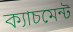
ক্যাচমেন্ট